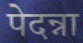
पेदन्ना